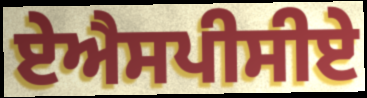
ਏਐਸਪੀਸੀਏ